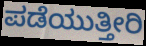
ಪಡೆಯುತ್ತೀರಿ